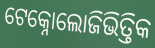
ଟେକ୍ନୋଲୋଜିଭିତ୍ତିକ